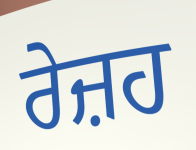
ਰੇਜ਼ਹ